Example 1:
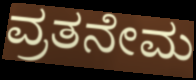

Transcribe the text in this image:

ವ್ರತನೇಮ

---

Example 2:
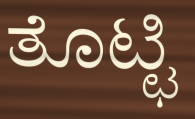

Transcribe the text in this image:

ತೊಟ್ಟಿ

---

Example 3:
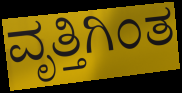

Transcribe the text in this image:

ವೃತ್ತಿಗಿಂತ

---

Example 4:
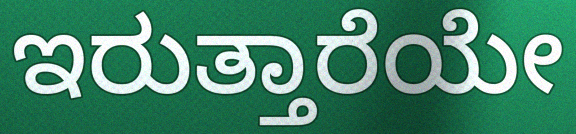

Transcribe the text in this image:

ಇರುತ್ತಾರೆಯೇ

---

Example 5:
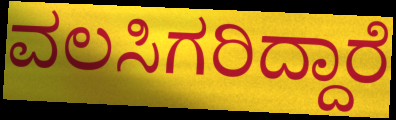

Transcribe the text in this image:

ವಲಸಿಗರಿದ್ದಾರೆ